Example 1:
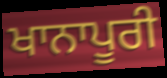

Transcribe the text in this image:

ਖਾਨਾਪੂਰੀ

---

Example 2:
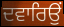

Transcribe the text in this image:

ਦਵਾਰਿਉਂ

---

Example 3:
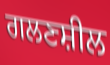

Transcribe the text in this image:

ਗਲਣਸ਼ੀਲ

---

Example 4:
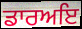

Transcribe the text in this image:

ਡਾਰਅਇ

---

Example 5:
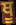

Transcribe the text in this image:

ਥੂ